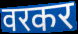
वरकर